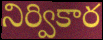
నిర్వికార